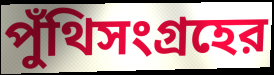
পুঁথিসংগ্রহের